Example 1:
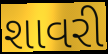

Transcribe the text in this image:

શાવરી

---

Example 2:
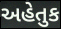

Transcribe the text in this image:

અહેતુક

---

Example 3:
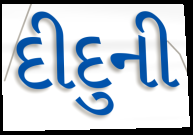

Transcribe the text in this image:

દીદુની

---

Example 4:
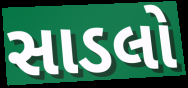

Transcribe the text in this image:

સાડલો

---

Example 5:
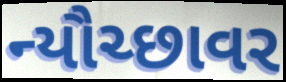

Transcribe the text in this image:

ન્યૌચ્છાવર